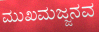
ಮುಖಮಜ್ಜನವ